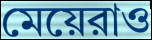
মেয়েরাও